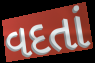
વદતાં